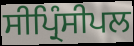
ਸੀਪ੍ਰਿੰਸੀਪਲ